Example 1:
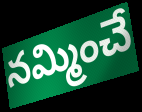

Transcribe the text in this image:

నమ్మించే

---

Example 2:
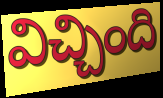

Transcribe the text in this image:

విచ్చింది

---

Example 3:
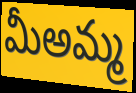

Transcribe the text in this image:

మీఅమ్మ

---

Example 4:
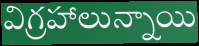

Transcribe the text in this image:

విగ్రహాలున్నాయి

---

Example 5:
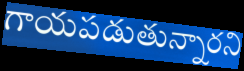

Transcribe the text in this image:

గాయపడుతున్నారని